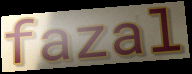
fazal